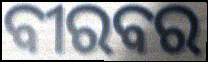
ବୀରବର